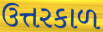
ઉત્તરકાળ